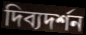
দিব্যদর্শন